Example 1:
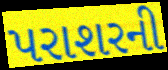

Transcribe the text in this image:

પરાશરની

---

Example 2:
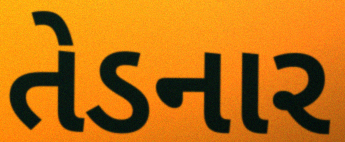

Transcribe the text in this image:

તેડનાર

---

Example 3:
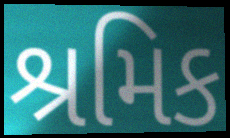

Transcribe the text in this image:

શ્રમિક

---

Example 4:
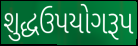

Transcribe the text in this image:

શુદ્ધઉપયોગરૂપ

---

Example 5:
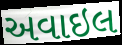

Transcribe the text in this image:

અવાઇલ